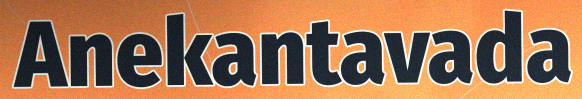
Anekantavada